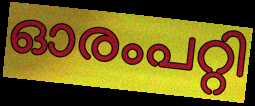
ഓരംപറ്റി